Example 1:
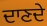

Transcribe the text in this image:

ਦਾਣਦੇ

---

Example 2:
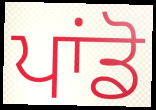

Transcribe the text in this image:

ਪਾਂਡੋ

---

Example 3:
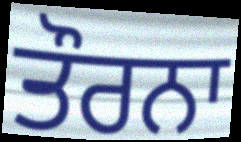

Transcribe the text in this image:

ਤੌਰਨਾ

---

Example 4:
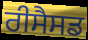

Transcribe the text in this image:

ਰੀਸੈਸਡ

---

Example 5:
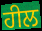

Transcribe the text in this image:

ਹੀਲ